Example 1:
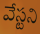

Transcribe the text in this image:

వేస్టని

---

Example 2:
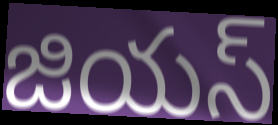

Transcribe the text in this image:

జియస్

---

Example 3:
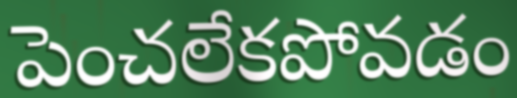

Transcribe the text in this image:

పెంచలేకపోవడం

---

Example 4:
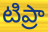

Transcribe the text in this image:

టిప్రా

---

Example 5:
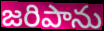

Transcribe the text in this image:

జరిపాను